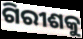
ଗିରୀଶକୁ